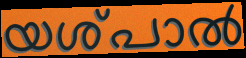
യശ്പാൽ